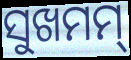
ସୁଖମମ୍